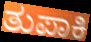
ತುಪಾಕಿ